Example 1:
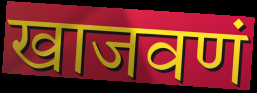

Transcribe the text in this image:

खाजवणं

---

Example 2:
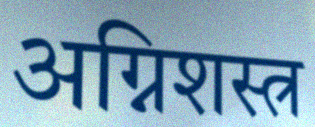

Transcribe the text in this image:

अग्निशस्त्र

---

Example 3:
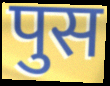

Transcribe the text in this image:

पुस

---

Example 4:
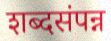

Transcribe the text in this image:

शब्दसंपन्न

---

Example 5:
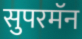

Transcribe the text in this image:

सुपरमॅन